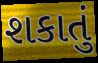
શકાતું